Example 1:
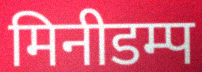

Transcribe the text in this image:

मिनीडम्प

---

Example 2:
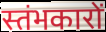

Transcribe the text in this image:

स्तंभकारों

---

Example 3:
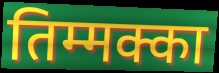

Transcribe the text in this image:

तिम्मक्का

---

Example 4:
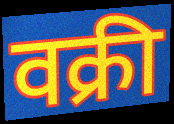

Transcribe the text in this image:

वक्री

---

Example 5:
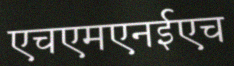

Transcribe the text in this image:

एचएमएनईएच